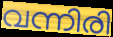
വന്നിരി